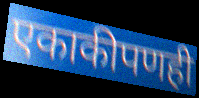
एकाकीपणही